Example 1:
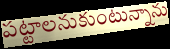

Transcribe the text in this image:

పట్టాలనుకుంటున్నాను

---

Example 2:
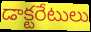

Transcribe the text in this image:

డాక్టరేటులు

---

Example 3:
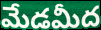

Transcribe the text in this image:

మేడమీద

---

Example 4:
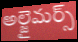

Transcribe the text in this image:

అల్జైమర్స్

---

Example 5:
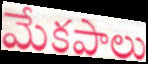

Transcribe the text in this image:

మేకపాలు